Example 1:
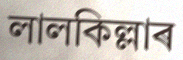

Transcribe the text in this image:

লালকিল্লাৰ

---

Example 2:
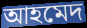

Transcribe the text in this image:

আহমেদ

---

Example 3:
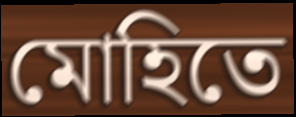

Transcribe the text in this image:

মোহিতে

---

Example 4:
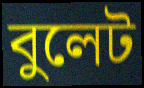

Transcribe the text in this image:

বুলেট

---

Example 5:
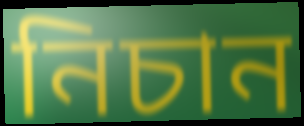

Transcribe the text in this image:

নিচান